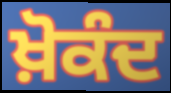
ਖ਼ੋਕੰਦ